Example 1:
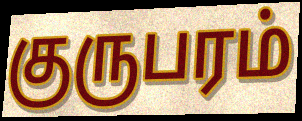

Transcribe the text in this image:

குருபரம்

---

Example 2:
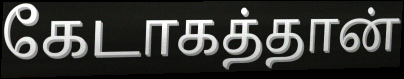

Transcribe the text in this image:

கேடாகத்தான்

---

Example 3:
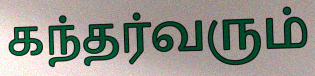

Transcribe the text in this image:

கந்தர்வரும்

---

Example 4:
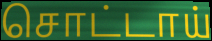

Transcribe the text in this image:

சொட்டாய்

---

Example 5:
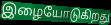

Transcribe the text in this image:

இழையோடுகிறது